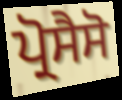
ਪ੍ਰੋਸੈਸੋ